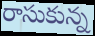
రాసుకున్న